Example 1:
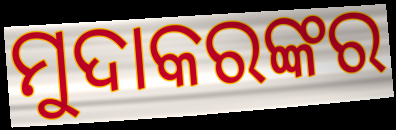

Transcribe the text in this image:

ମୁଦାକରଙ୍କର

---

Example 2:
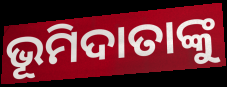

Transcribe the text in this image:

ଭୂମିଦାତାଙ୍କୁ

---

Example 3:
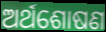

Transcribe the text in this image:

ଅର୍ଥଶୋଷଣ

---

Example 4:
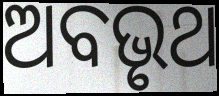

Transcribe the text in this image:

ଅବଭୃଥ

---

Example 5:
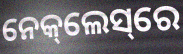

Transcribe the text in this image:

ନେକ୍‌ଲେସ୍‌ରେ